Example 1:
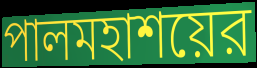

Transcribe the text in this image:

পালমহাশয়ের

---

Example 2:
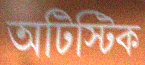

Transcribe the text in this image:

অটিস্টিক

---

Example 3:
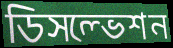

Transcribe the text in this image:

ডিসল্ভেশন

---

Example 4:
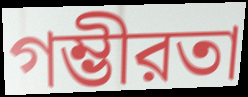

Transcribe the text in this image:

গম্ভীরতা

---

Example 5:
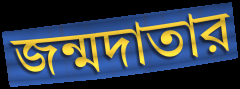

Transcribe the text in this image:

জন্মদাতার